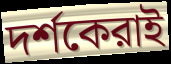
দর্শকেরাই